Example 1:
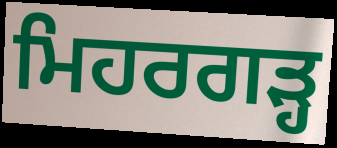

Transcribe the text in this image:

ਮਿਹਰਗੜ੍ਹ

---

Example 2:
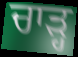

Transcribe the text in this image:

ਚਾਡ਼੍ਹ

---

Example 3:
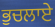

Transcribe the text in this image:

ਭੁਚਲਾਏ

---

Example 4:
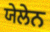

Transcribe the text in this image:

ਯੇਲੇਨ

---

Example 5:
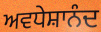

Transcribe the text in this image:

ਅਵਧੇਸ਼ਾਨੰਦ